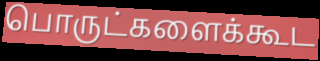
பொருட்களைக்கூட